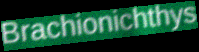
Brachionichthys